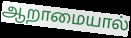
ஆறாமையால்